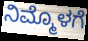
ನಿಮ್ಮೊಳಗೆ